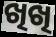
ଖିଖି